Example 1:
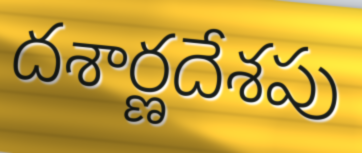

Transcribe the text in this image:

దశార్ణదేశపు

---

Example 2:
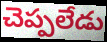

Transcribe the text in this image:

చెప్పలేడు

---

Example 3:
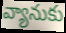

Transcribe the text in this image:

వ్యానుకు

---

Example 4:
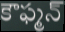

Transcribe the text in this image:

కౌఫ్మన్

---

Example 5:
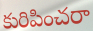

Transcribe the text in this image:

కురిపించరా